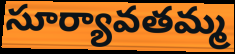
సూర్యావతమ్మ